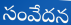
సంవేదన